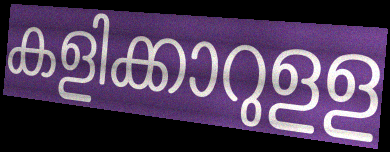
കളിക്കാറുളള